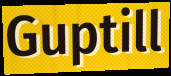
Guptill